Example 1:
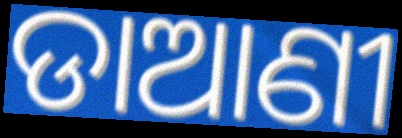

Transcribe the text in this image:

ଡାଆଣୀ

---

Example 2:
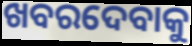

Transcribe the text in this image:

ଖବରଦେବାକୁ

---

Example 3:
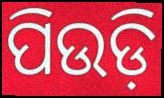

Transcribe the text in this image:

ପିଉଡ଼ି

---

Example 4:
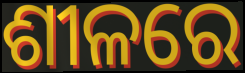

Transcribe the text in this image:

ଶୀଳରେ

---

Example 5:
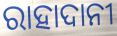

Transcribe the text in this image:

ରାହାଦାନୀ